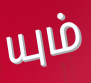
யும்